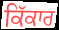
ਕਿੱਕਾਰ